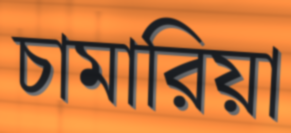
চামারিয়া